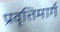
प्रवृत्तिमार्ग